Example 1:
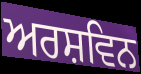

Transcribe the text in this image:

ਅਰਸ਼ਵਿਨ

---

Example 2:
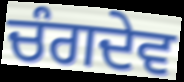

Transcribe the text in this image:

ਚੰਗਦੇਵ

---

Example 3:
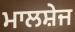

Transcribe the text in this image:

ਮਾਲਸ਼ੇਜ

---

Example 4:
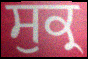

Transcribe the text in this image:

ਸੁਕ੍ਰ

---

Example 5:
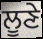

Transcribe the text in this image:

ਲੂਣੇ